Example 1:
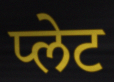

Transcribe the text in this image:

प्लेट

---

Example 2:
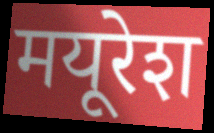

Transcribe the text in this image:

मयूरेश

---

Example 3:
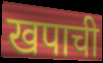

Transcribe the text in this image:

खपाची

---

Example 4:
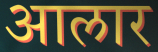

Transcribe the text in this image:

आलार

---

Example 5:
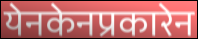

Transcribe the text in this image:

येनकेनप्रकारेन